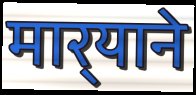
मार्‍याने